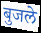
बुजले